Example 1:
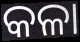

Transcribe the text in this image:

କଳା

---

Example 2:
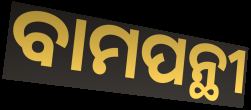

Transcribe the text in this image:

ବାମପନ୍ଥୀ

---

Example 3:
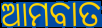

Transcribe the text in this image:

ଆମବାତ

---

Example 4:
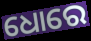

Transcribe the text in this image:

ଧୋରେ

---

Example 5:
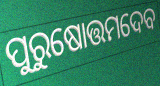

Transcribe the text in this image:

ପୁରୁଷୋତ୍ତମଦେବ